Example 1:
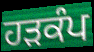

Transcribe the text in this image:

ਹੜਕੰਪ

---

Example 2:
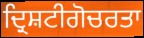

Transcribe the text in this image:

ਦ੍ਰਿਸ਼ਟੀਗੋਚਰਤਾ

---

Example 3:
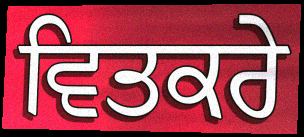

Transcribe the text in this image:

ਵਿਤਕਰੇ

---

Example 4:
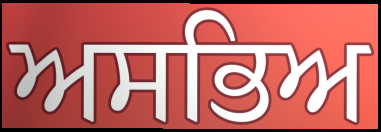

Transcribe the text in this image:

ਅਸਭਿਅ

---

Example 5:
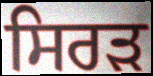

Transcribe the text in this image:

ਸਿਰਡ਼